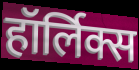
हॉर्लिक्स